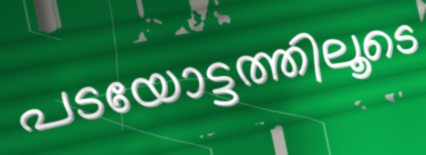
പടയോട്ടത്തിലൂടെ